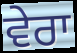
ਵੇਰਾ